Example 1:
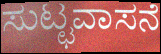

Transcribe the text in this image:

ಸುಟ್ಟವಾಸನೆ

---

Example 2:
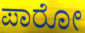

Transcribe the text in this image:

ಪಾರೋ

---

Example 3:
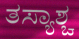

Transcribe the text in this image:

ತಸ್ಯಾಶ್ಚ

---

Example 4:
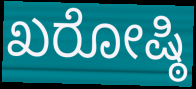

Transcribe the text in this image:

ಖರೋಷ್ಠಿ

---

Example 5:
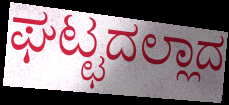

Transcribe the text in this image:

ಘಟ್ಟದಲ್ಲಾದ